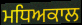
ਮਧਿਅਕਾਲ